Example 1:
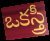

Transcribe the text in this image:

ఒకస్త్రీ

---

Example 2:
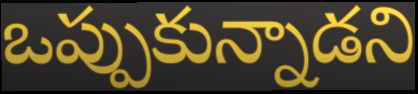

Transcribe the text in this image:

ఒప్పుకున్నాడని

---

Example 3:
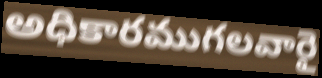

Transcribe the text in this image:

అధికారముగలవారై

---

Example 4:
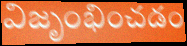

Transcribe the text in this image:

విజృంభించడం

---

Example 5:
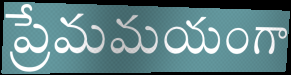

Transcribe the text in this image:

ప్రేమమయంగా